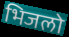
भिजलो